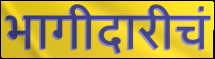
भागीदारीचं